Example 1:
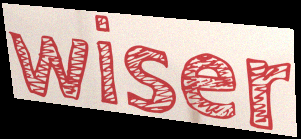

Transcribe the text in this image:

wiser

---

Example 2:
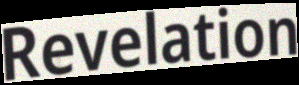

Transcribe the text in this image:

Revelation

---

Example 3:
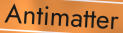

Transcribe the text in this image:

Antimatter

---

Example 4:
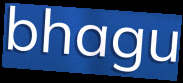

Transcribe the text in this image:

bhagu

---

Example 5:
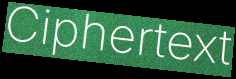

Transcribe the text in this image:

Ciphertext